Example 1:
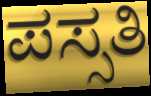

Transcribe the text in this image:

ಪಸ್ಸತಿ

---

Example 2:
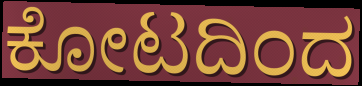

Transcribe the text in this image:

ಕೋಟದಿಂದ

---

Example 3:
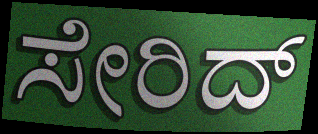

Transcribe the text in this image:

ಸೇರಿದ್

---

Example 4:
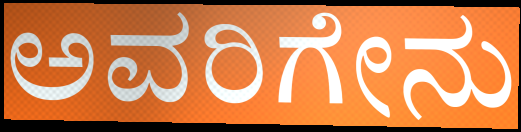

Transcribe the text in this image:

ಅವರಿಗೇನು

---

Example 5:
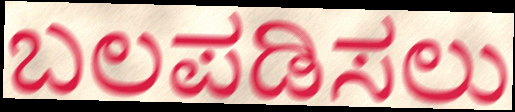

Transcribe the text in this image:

ಬಲಪಡಿಸಲು